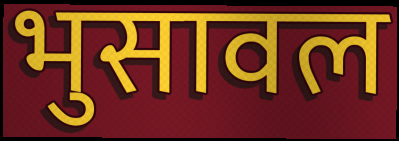
भुसावल